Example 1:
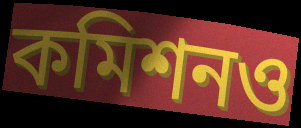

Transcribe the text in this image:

কমিশনও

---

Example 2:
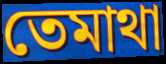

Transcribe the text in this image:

তেমাথা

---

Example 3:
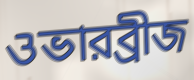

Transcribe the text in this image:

ওভারব্রীজ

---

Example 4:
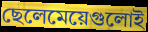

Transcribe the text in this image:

ছেলেমেয়েগুলোই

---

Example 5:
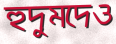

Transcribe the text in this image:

হুদুমদেও